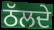
ਠੱਲਦੇ